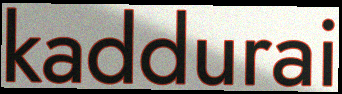
kaddurai